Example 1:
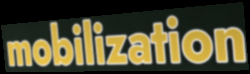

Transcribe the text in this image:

mobilization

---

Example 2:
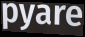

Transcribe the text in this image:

pyare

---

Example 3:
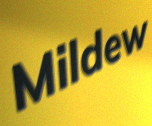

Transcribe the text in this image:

Mildew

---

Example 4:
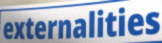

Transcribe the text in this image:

externalities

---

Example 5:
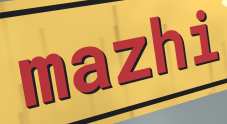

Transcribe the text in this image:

mazhi